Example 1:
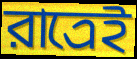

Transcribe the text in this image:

রাত্রেই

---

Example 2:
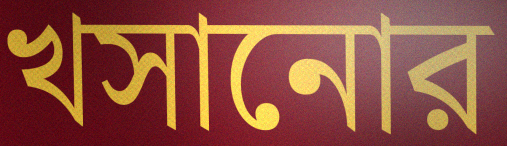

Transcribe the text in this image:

খসানোর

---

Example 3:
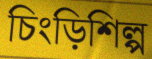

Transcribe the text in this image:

চিংড়িশিল্প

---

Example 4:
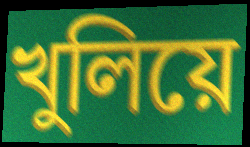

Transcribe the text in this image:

খুলিয়ে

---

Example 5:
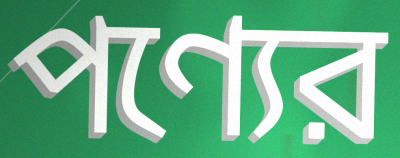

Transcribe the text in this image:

পণ্যের